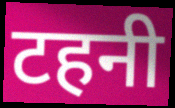
टहनी